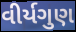
વીર્યગુણ